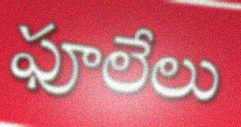
ఫూలేలు